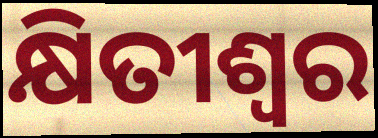
କ୍ଷିତୀଶ୍ୱର